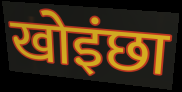
खोइंछा